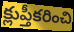
క్లుప్తీకరించి